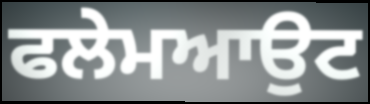
ਫਲੇਮਆਉਟ